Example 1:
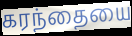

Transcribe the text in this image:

கரந்தையை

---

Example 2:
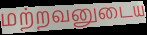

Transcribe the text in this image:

மற்றவனுடைய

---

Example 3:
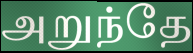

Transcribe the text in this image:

அறுந்தே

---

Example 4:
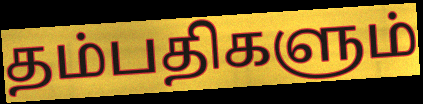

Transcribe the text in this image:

தம்பதிகளும்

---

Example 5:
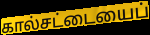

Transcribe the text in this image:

கால்சட்டையைப்